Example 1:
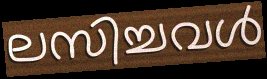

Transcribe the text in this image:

ലസിച്ചവൾ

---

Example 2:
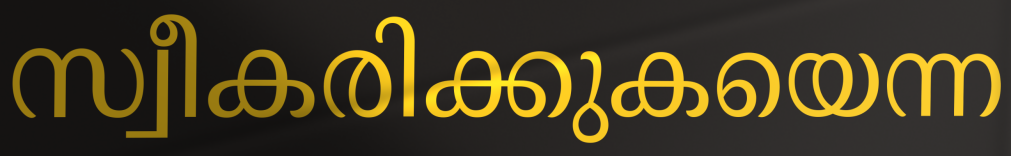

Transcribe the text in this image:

സ്വീകരിക്കുകയെന്ന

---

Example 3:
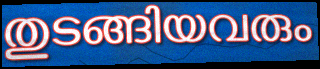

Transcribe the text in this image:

തുടങ്ങിയവരും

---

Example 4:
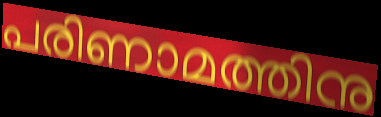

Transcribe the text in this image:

പരിണാമത്തിനു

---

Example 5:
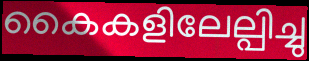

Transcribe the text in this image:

കൈകളിലേല്പിച്ചു